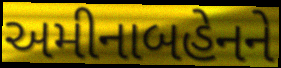
અમીનાબહેનને